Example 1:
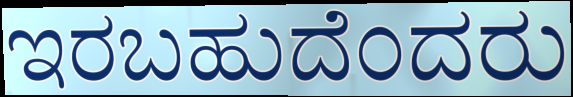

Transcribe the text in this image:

ಇರಬಹುದೆಂದರು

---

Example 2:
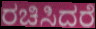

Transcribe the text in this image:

ರಚಿಸಿದರೆ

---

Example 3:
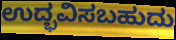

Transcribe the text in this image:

ಉದ್ಭವಿಸಬಹುದು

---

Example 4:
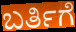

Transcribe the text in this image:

ಬರ್ತಿಗೆ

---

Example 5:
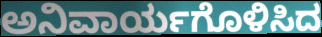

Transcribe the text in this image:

ಅನಿವಾರ್ಯಗೊಳಿಸಿದ